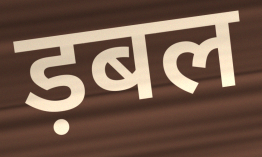
ड़बल